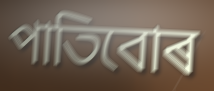
পাতিবোৰ